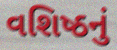
વશિષ્ઠનું